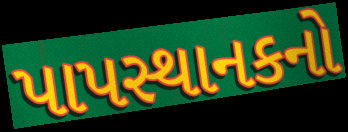
પાપસ્થાનકનો